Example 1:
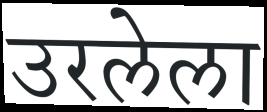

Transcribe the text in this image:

उरलेला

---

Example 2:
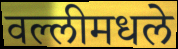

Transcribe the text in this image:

वल्लीमधले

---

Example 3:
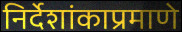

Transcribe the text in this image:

निर्देशांकाप्रमाणे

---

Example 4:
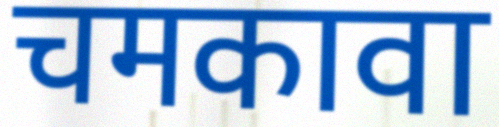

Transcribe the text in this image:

चमकावा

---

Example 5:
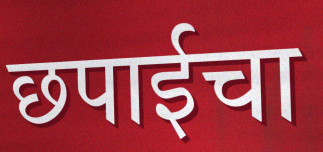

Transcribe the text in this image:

छपाईचा